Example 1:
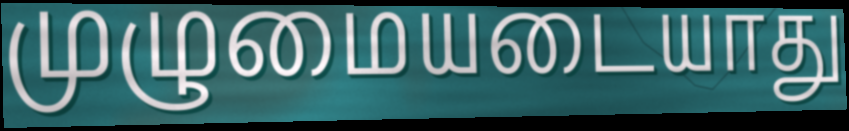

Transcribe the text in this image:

முழுமையடையாது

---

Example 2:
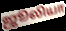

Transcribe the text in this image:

ஜூலியா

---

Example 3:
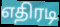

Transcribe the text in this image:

எதிரடி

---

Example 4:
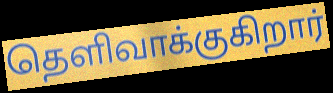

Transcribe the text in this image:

தெளிவாக்குகிறார்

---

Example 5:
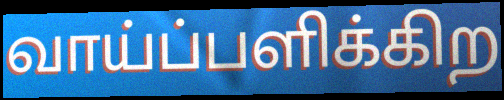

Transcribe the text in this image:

வாய்ப்பளிக்கிற